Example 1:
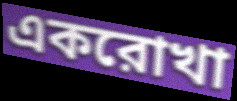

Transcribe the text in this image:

একরোখা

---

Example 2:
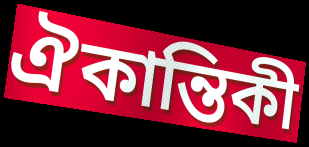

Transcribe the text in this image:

ঐকান্তিকী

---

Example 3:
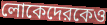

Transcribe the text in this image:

লোকেদেরকেও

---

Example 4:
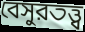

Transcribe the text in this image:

বেসুরতত্ত্ব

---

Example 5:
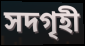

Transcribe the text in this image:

সদগৃহী